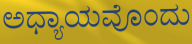
ಅಧ್ಯಾಯವೊಂದು